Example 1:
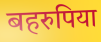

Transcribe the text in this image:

बहरुपिया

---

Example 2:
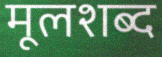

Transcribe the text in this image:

मूलशब्द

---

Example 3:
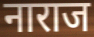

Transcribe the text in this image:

नाराज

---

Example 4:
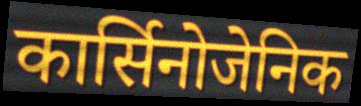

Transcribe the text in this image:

कार्सिनोजेनिक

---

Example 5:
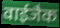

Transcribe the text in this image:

वाईजैक